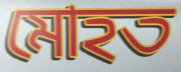
মোহত